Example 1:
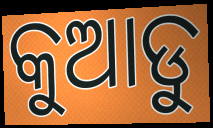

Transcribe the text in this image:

କୁଆଡୁ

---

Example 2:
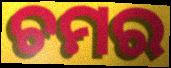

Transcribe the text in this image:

ଚମର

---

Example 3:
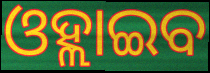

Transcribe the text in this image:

ଓହ୍ଲାଇବ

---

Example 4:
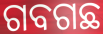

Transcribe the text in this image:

ଗବଗଛ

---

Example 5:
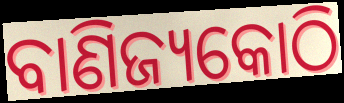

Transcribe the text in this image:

ବାଣିଜ୍ୟକୋଠି